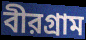
বীরগ্রাম